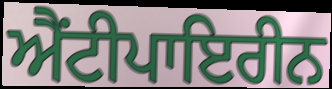
ਐਂਟੀਪਾਇਰੀਨ